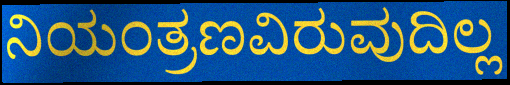
ನಿಯಂತ್ರಣವಿರುವುದಿಲ್ಲ